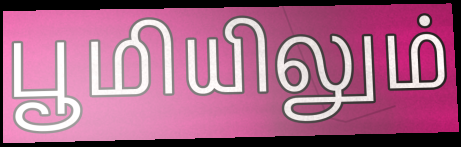
பூமியிலும்